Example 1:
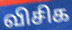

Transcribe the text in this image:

விசிக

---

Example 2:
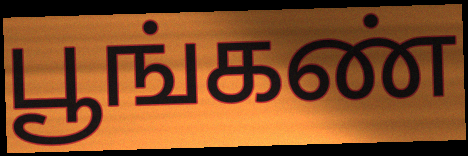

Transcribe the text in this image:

பூங்கண்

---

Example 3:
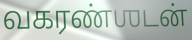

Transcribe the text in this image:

வகரண்ஶடன்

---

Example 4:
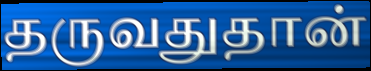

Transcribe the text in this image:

தருவதுதான்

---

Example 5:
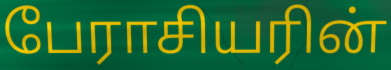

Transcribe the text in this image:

பேராசியரின்